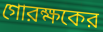
গোরক্ষকের